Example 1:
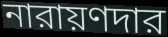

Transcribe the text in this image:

নারায়ণদার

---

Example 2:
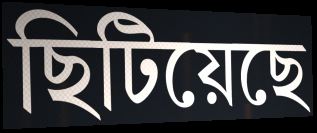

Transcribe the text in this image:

ছিটিয়েছে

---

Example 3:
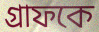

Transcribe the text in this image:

গ্রাফকে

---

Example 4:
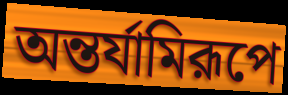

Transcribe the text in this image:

অন্তর্যামিরূপে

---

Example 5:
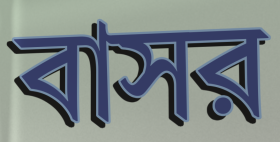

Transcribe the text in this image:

বাসর